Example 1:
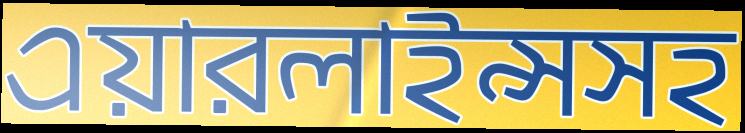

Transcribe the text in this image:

এয়ারলাইন্সসহ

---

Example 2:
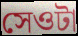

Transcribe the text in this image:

সেওটা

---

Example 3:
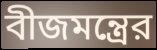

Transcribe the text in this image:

বীজমন্ত্রের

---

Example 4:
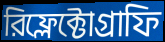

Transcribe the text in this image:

রিফ্লেক্টোগ্রাফি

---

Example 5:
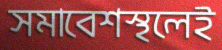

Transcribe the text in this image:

সমাবেশস্থলেই